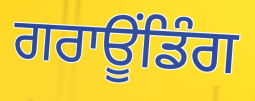
ਗਰਾਊਂਡਿੰਗ